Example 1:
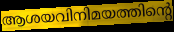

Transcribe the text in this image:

ആശയവിനിമയത്തിന്റെ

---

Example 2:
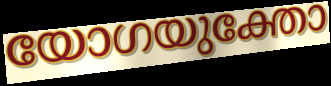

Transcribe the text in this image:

യോഗയുക്തോ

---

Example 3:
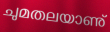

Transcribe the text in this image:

ചുമതലയാണു്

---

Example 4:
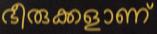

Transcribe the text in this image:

ഭീരുക്കളാണ്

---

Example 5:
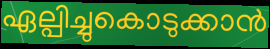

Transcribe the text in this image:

ഏല്പിച്ചുകൊടുക്കാൻ